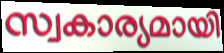
സ്വകാര്യമായി